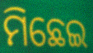
ମିଛେଇ